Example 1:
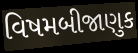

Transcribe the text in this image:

વિષમબીજાણુક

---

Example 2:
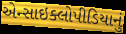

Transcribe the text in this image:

એન્સાઇક્લોપીડિયાનું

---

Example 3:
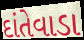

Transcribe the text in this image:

દાંતેવાડા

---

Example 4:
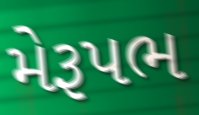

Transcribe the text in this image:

મેરૂપભ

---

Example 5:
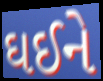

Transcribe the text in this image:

ઘઈને